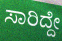
ಸಾರಿದ್ದೇ